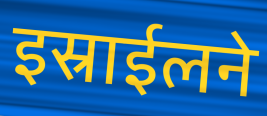
इस्राईलने